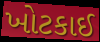
ખોટકાઈ